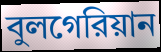
বুলগেরিয়ান